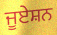
ਜੂਏਸ਼ਨ